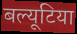
बल्यूटिया